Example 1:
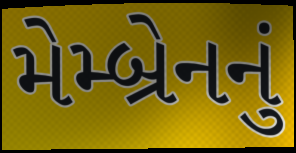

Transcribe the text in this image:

મેમ્બ્રેનનું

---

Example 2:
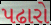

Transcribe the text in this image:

પઢારો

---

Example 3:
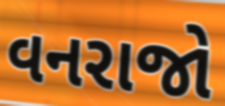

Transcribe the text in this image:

વનરાજો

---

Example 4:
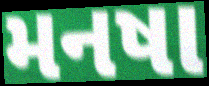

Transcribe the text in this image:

મનષા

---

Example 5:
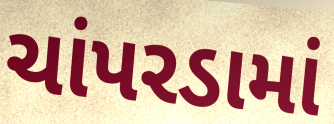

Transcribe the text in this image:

ચાંપરડામાં